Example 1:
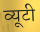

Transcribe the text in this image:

व्यूटी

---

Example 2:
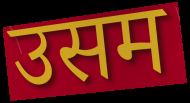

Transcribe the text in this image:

उसम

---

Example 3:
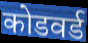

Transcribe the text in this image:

कोडवर्ड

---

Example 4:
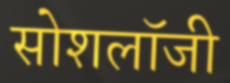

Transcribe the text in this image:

सोशलॉजी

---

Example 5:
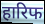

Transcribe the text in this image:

हारिफ